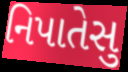
નિપાતેસુ